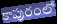
కాపురంలో